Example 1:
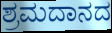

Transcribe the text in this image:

ಶ್ರಮದಾನದ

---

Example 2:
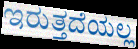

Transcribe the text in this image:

ಇರುತ್ತದೆಯಲ್ಲ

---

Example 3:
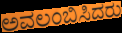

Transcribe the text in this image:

ಅವಲಂಬಿಸಿದರು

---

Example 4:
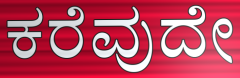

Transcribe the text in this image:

ಕರೆವುದೇ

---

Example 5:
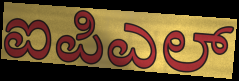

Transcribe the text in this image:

ಐಪಿಎಲ್